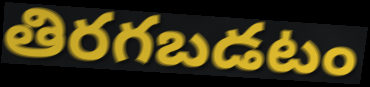
తిరగబడటం